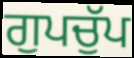
ਗੁਪਚੁੱਪ